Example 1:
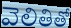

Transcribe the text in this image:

వెలితితో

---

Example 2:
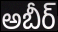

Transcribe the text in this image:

అబీర్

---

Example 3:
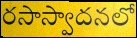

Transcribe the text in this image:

రసాస్వాదనలో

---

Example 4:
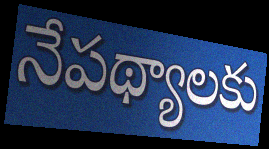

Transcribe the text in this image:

నేపథ్యాలకు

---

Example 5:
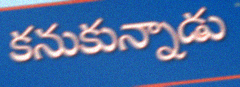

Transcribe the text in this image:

కనుకున్నాడు